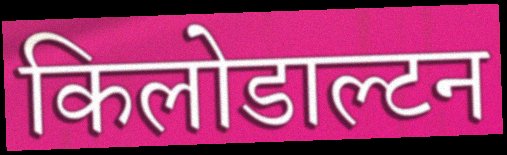
किलोडाल्टन